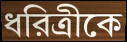
ধরিত্রীকে